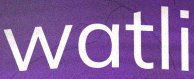
watli